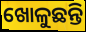
ଖୋଳୁଛନ୍ତି